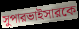
সুপারভাইসারকে